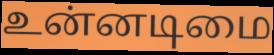
உன்னடிமை